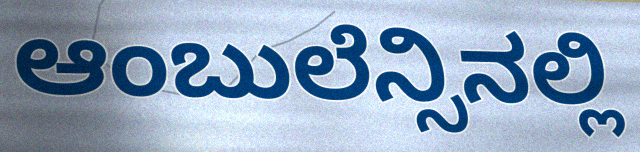
ಆಂಬುಲೆನ್ಸಿನಲ್ಲಿ